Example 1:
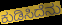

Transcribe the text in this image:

ಕುಡಿಸಿದೆನು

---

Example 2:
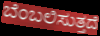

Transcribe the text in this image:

ಬೆಂಬಲಿಸುತ್ತದೆ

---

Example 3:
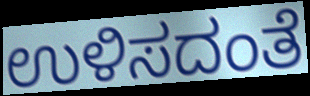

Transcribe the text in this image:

ಉಳಿಸದಂತೆ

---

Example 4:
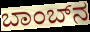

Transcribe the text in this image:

ಬಾಂಬ್‍ನ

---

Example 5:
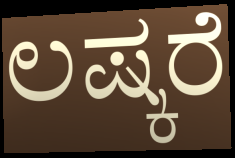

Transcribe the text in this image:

ಲಷ್ಕರೆ